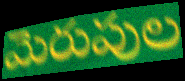
మెరుపుల